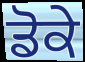
ਡੋਕੇ